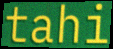
tahi